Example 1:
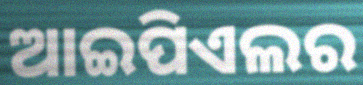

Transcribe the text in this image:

ଆଇପିଏଲର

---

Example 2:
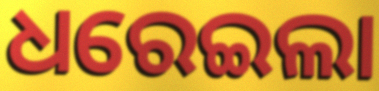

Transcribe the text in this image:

ଧରେଇଲା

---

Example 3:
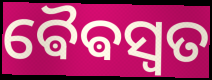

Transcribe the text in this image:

ଵୈଵସ୍ୱତ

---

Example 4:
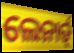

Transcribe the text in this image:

ଲେନାର୍ଡ୍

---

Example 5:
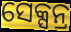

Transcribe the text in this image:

ସେକ୍ସନ୍ର